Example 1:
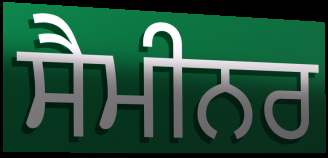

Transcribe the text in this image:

ਸੈਮੀਨਰ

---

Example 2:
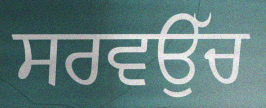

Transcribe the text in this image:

ਸਰਵਉੱਚ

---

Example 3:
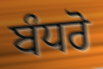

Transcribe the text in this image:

ਬੰਧਰੋ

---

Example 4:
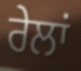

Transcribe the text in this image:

ਰੇਲਾਂ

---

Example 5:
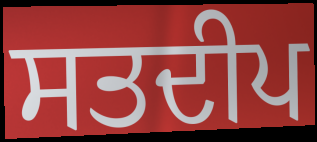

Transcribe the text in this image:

ਸਤਦੀਪ